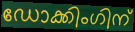
ഡോക്കിംഗിന്